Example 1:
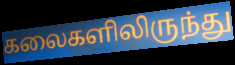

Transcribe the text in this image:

கலைகளிலிருந்து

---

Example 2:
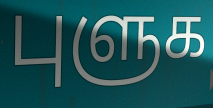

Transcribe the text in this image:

புளுக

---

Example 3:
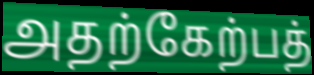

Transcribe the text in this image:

அதற்கேற்பத்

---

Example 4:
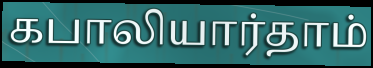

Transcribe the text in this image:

கபாலியார்தாம்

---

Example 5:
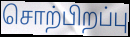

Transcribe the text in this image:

சொற்பிறப்பு